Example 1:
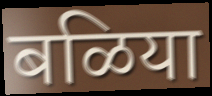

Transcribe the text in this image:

बळिया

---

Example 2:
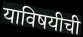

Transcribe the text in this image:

याविषयीची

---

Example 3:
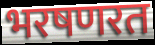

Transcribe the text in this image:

भरषणरत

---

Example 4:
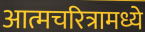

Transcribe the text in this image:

आत्मचरित्रामध्ये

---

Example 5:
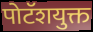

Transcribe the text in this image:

पोटॅशयुक्त